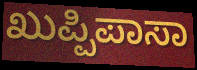
ಖುಪ್ಪಿಪಾಸಾ